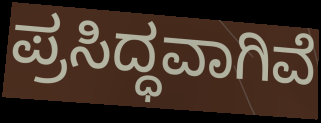
ಪ್ರಸಿದ್ಧವಾಗಿವೆ